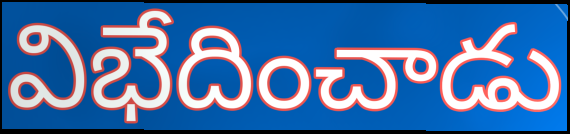
విభేదించాడు